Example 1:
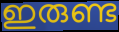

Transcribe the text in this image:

ഇരുണ്ട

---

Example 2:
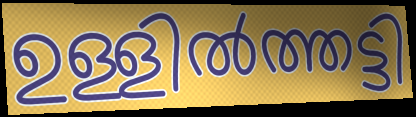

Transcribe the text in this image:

ഉള്ളിൽത്തട്ടി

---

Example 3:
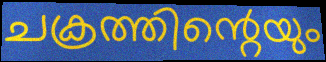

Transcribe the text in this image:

ചക്രത്തിന്റെയും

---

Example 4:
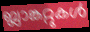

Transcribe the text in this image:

ബ്ലാങ്കറ്റുകൾ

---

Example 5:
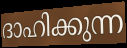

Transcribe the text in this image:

ദാഹിക്കുന്ന